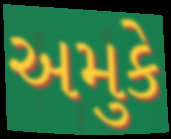
અમુકે